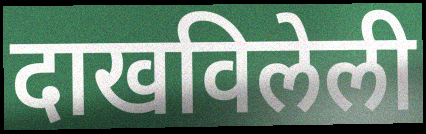
दाखविलेली